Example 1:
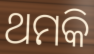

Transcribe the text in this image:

ଥମକି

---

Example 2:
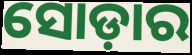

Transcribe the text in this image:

ସୋଡ଼ାର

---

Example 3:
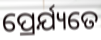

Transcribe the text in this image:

ପ୍ରେର୍ଯ୍ୟତେ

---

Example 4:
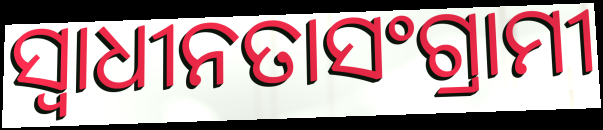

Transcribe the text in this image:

ସ୍ଵାଧୀନତାସଂଗ୍ରାମୀ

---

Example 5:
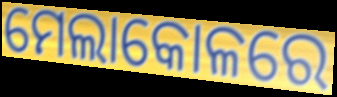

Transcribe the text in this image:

ମେଲାକୋଳରେ